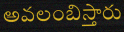
అవలంబిస్తారు